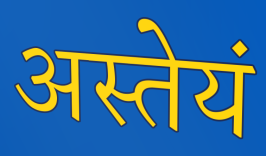
अस्तेयं